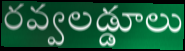
రవ్వలడ్డూలు